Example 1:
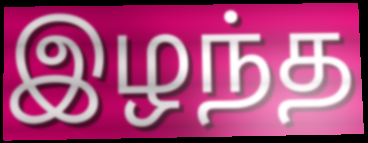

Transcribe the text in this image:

இழந்த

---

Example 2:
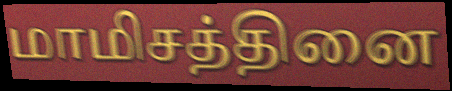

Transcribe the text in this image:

மாமிசத்தினை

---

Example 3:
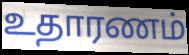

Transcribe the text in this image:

உதாரணம்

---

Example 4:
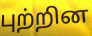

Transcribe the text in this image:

புற்றின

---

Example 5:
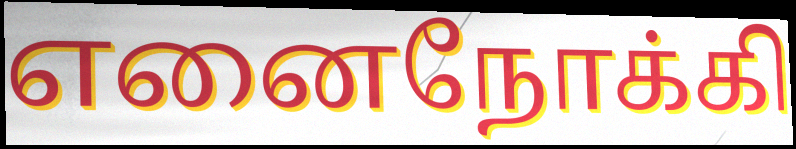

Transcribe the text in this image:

எனைநோக்கி